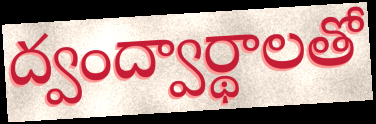
ద్వంద్వార్థాలతో